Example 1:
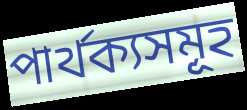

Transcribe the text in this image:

পাৰ্থক্যসমূহ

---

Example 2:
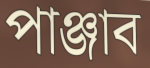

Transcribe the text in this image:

পাঞ্জাব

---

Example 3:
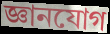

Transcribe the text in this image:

জ্ঞানযোগ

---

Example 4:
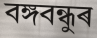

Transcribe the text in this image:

বঙ্গবন্ধুৰ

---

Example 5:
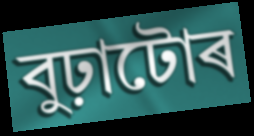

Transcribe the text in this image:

বুঢ়াটোৰ